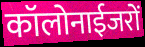
कॉलोनाईजरों